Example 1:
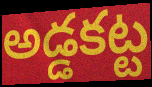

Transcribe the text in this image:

అడ్డకట్ట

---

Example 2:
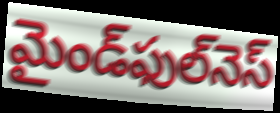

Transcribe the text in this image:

మైండ్‌ఫుల్‌నెస్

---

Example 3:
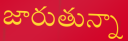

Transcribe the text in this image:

జారుతున్నా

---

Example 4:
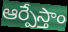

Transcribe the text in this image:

ఆర్పేస్తాం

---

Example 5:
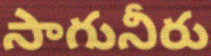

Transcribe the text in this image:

సాగునీరు